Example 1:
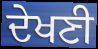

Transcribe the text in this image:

ਦੇਖਣੀ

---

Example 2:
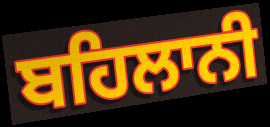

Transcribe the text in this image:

ਬਹਿਲਾਨੀ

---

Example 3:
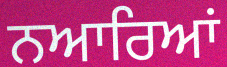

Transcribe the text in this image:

ਨਆਰਿਆਂ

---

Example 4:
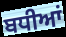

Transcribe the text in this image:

ਬਧੀਆਂ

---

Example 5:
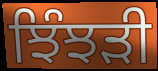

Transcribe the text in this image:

ਝਿੰਝੜੀ